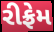
રીફ્રેમ